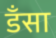
डँसा